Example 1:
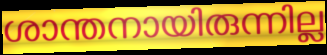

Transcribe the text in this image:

ശാന്തനായിരുന്നില്ല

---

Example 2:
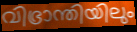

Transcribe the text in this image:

വിഭ്രാന്തിയിലും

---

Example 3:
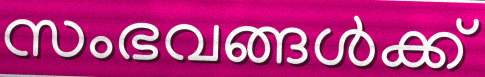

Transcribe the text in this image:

സംഭവങ്ങൾക്ക്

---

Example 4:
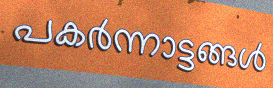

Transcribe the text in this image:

പകർന്നാട്ടങ്ങൾ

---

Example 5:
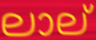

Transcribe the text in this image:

ലാല്